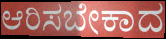
ಆರಿಸಬೇಕಾದ